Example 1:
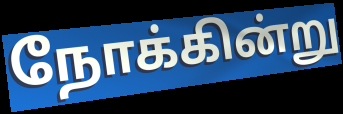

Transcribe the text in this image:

நோக்கின்று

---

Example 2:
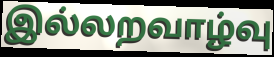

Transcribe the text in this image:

இல்லறவாழ்வு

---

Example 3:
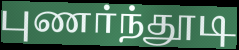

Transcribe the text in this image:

புணர்ந்தூடி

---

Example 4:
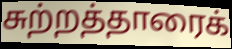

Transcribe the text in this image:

சுற்றத்தாரைக்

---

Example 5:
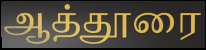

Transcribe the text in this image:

ஆத்தூரை